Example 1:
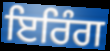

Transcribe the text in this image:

ਇਰਿੰਗ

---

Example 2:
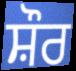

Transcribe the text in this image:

ਸ਼ੌਰ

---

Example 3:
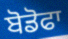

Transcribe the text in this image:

ਬੋਡੋਫਾ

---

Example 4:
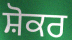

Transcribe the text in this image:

ਸ਼ੋਕਰ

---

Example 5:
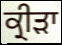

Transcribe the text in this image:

ਕ੍ਰੀੜਾ